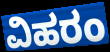
ವಿಹರಂ